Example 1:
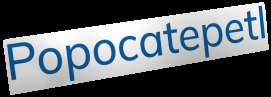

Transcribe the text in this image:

Popocatepetl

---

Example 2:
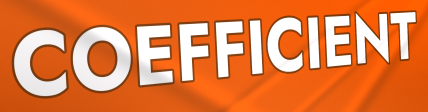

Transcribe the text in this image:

COEFFICIENT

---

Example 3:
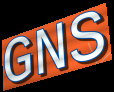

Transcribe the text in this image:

GNS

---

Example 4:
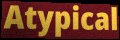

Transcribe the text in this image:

Atypical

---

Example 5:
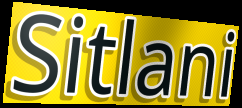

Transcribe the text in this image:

Sitlani